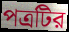
পত্রটির